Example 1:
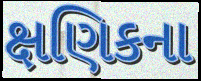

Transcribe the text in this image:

ક્ષણિકના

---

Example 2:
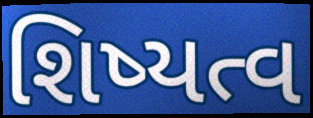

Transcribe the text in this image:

શિષ્યત્વ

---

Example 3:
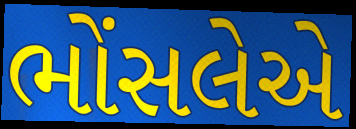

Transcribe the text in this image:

ભોંસલેએ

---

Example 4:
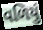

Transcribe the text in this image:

વળિયું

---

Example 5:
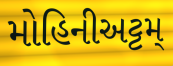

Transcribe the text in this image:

મોહિનીઅટ્ટમ્